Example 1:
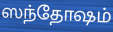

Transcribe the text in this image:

ஸந்தோஷம்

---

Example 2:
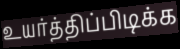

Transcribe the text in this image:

உயர்த்திப்பிடிக்க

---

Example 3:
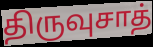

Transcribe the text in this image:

திருவுசாத்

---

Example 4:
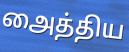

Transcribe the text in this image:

அைத்திய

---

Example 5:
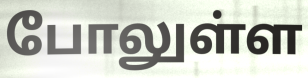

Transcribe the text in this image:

போலுள்ள